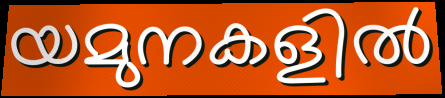
യമുനകളിൽ